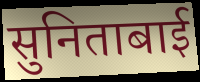
सुनिताबाई